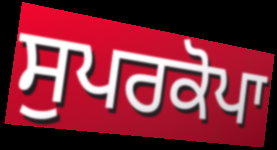
ਸੁਪਰਕੋਪਾ